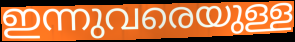
ഇന്നുവരെയുള്ള